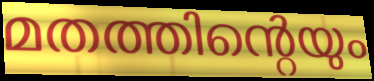
മതത്തിന്റെയും